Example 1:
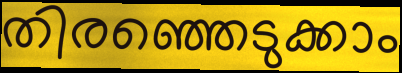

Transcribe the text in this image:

തിരഞ്ഞെടുക്കാം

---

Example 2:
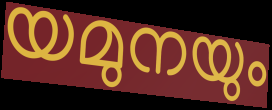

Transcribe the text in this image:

യമുനയും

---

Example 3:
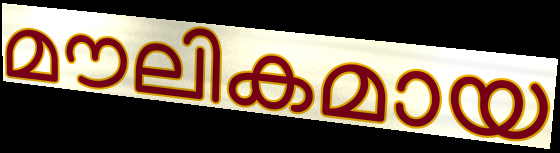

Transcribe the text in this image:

മൗലികമായ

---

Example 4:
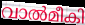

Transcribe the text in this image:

വാൽമീകി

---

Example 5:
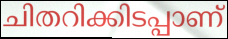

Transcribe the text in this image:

ചിതറിക്കിടപ്പാണ്